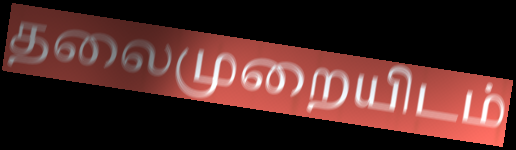
தலைமுறையிடம்